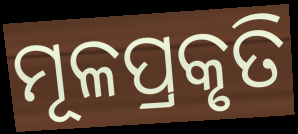
ମୂଳପ୍ରକୃତି